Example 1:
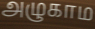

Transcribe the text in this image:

அழுகாம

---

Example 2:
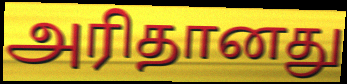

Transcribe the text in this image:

அரிதானது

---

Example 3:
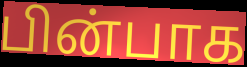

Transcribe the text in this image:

பின்பாக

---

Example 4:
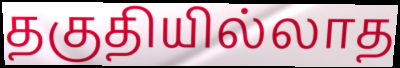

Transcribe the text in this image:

தகுதியில்லாத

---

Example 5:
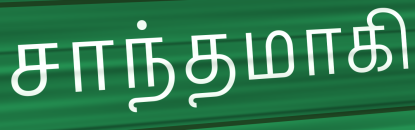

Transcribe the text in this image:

சாந்தமாகி